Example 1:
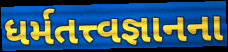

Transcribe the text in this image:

ધર્મતત્ત્વજ્ઞાનના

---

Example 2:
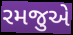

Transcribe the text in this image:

રમજુએ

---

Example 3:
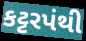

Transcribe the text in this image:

કટ્ટરપંથી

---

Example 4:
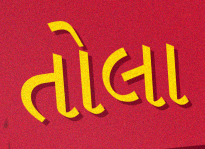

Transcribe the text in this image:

તોલા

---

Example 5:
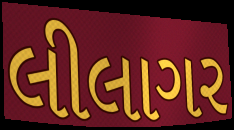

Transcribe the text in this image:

લીલાગર